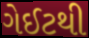
ગેઈટથી